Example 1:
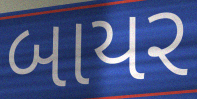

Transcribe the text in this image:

બાયર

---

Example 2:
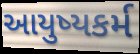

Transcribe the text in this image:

આયુષ્યકર્મ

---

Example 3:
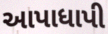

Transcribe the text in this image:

આપાધાપી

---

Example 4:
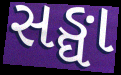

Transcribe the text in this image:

સઙ્ઘા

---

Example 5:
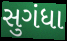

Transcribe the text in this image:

સુગંધા